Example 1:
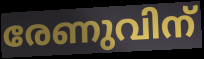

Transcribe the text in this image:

രേണുവിന്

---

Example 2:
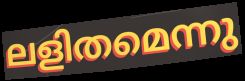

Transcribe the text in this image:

ലളിതമെന്നു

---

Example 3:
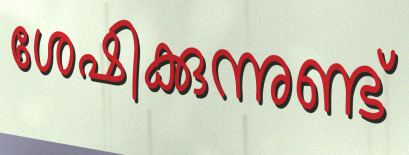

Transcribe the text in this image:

ശേഷിക്കുന്നുണ്ട്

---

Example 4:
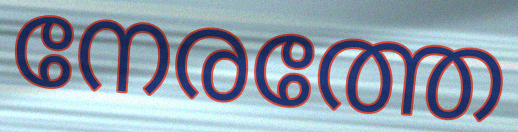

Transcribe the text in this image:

നേരത്തേ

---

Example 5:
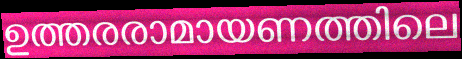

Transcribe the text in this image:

ഉത്തരരാമായണത്തിലെ